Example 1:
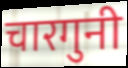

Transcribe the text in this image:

चारगुनी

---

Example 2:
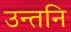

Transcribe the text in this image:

उन्तनि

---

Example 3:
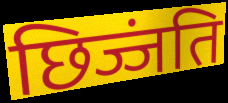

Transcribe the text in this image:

छिज्जंति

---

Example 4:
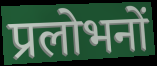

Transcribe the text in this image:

प्रलोभनों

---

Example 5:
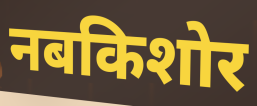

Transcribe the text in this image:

नबकिशोर